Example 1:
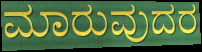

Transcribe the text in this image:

ಮಾರುವುದರ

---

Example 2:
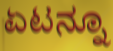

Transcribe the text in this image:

ಏಟನ್ನೂ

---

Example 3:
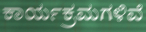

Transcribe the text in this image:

ಕಾರ್ಯಕ್ರಮಗಳಿವೆ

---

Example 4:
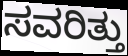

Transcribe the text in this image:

ಸವರಿತ್ತು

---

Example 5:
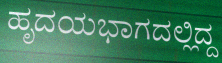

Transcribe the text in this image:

ಹೃದಯಭಾಗದಲ್ಲಿದ್ದ